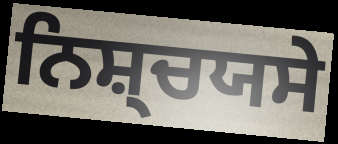
ਨਿਸ਼੍ਚਯਸੇ